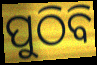
ପୁଠିବି